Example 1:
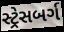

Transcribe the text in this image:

સ્ટ્રેસબર્ગ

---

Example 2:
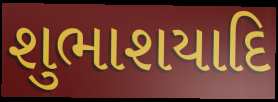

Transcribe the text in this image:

શુભાશયાદિ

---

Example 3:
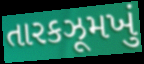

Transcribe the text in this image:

તારકઝૂમખું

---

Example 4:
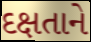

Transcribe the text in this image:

દક્ષતાને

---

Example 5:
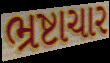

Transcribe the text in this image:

ભ્રષ્ટાચાર